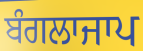
ਬੰਗਲਾਜਾਪ